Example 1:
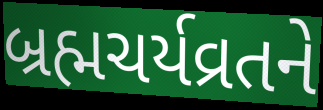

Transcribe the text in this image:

બ્રહ્મચર્યવ્રતને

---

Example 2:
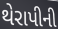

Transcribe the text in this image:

થેરાપીની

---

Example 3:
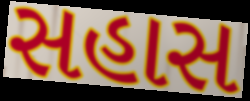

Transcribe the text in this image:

સહાસ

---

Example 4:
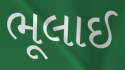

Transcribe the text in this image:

ભૂલાઈ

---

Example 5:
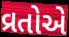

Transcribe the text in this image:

વ્રતોએ